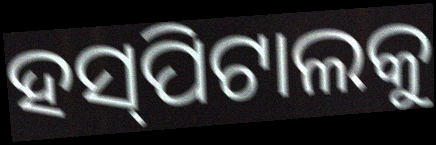
ହସ୍‌ପିଟାଲକୁ